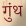
गुंथ